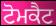
ਟੋਮਕੈਟ